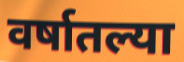
वर्षातल्या